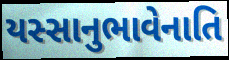
યસ્સાનુભાવેનાતિ